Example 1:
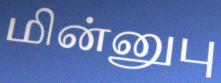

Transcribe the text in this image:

மின்னுபு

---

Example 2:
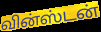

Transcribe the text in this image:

வின்ஸ்டன்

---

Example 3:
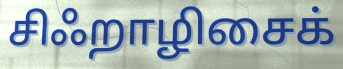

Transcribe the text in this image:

சிஃறாழிசைக்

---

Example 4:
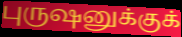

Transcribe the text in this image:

புருஷனுக்குக்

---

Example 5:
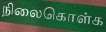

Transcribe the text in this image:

நிலைகொள்க